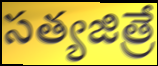
సత్యజిత్రే